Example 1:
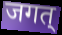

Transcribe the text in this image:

जगत्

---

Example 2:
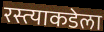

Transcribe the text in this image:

रस्त्याकडेला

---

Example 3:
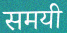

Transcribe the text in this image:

समयी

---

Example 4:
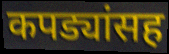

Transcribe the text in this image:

कपड्यांसह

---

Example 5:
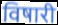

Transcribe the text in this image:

विषारी